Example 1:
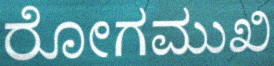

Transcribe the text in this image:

ರೋಗಮುಖಿ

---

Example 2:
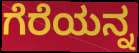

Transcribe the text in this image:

ಗೆರೆಯನ್ನ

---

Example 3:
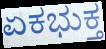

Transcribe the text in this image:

ಏಕಭುಕ್ತ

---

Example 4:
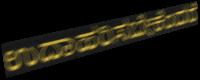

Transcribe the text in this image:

ಉದಾಹರಿಸಬೇಕೆಂದರೆ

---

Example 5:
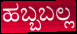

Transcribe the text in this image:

ಹಬ್ಬಬಲ್ಲ